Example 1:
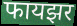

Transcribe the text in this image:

फायझर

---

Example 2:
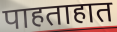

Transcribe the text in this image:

पाहताहात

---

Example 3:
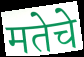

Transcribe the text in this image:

मतेचे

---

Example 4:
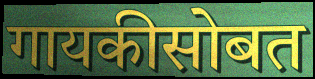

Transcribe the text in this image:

गायकीसोबत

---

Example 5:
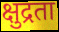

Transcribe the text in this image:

क्षुद्रता